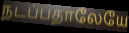
நடப்பதாலேயே